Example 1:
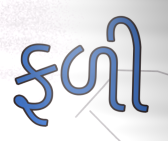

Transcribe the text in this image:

ફળી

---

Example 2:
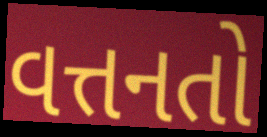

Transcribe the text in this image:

વત્તનતો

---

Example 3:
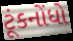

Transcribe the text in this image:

ટૂંકનોંધો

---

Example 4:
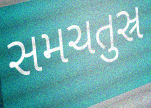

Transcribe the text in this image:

સમચતુસ્ર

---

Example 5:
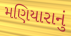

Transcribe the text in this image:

મણિયારાનું